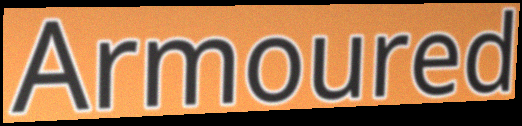
Armoured